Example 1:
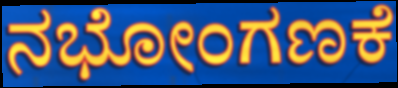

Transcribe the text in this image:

ನಭೋಂಗಣಕೆ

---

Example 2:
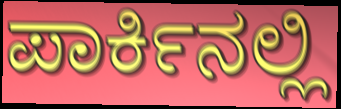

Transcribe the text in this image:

ಪಾರ್ಕಿನಲ್ಲಿ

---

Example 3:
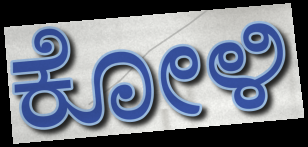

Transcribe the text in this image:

ಕೋಳಿ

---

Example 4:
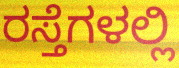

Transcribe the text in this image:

ರಸ್ತೆಗಳಲ್ಲಿ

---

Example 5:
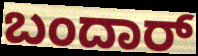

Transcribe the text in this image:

ಬಂದಾರ್